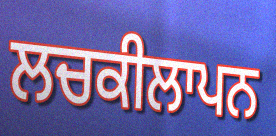
ਲਚਕੀਲਾਪਨ